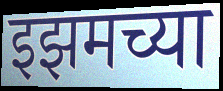
इझमच्या